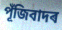
পূঁজিবাদৰ